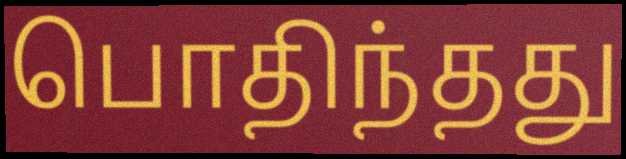
பொதிந்தது